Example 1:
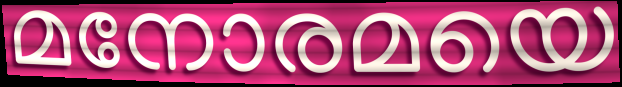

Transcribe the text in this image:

മനോരമയെ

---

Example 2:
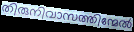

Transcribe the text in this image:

തിരുനിവാസത്തിന്മേൽ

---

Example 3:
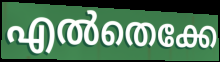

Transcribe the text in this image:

എൽതെക്കേ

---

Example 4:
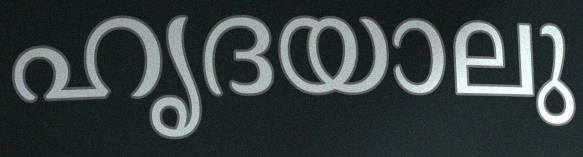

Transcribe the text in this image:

ഹൃദയാലു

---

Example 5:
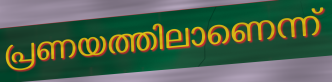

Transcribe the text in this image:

പ്രണയത്തിലാണെന്ന്